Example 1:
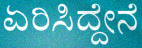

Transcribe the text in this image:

ಏರಿಸಿದ್ದೇನೆ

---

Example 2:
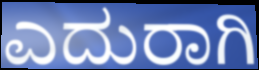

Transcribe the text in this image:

ಎದುರಾಗಿ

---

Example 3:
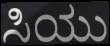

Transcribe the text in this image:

ಸಿಯು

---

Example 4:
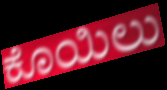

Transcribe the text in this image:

ಕೊಯಿಲು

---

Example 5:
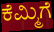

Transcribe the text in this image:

ಕೆಮ್ಮಿಗೆ